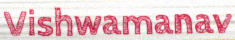
Vishwamanav